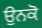
ਉਨਕੋ